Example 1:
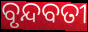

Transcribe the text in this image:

ବୃନ୍ଦବତୀ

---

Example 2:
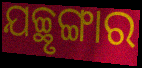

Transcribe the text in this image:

ଯଚ୍ଛୃଙ୍ଗାର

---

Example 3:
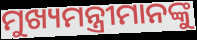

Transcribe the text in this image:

ମୁଖ୍ୟମନ୍ତ୍ରୀମାନଙ୍କୁ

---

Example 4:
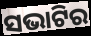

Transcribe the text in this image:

ସଭାଟିର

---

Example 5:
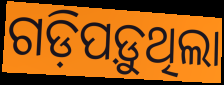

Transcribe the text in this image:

ଗଡ଼ିପଡ଼ୁଥିଲା